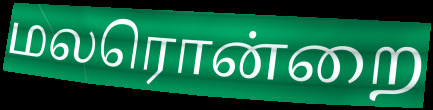
மலரொன்றை